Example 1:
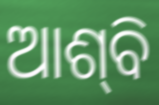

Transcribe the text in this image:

ଆଶ୍‍ବି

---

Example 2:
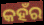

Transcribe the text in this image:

କହଁର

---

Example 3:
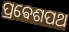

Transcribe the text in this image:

ପ୍ରଵେଶପଥ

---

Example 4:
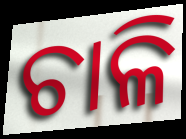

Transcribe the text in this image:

ଚାଳି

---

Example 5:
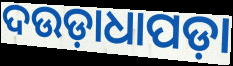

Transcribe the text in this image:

ଦଉଡ଼ାଧାପଡ଼ା